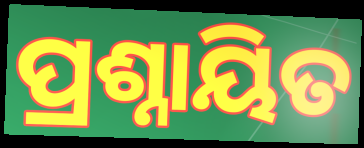
ପ୍ରଶ୍ନାୟିତ